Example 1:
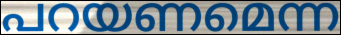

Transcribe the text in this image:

പറയണമെന്ന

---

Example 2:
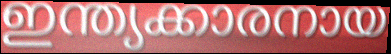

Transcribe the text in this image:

ഇന്ത്യക്കാരനായ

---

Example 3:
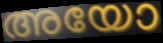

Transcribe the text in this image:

അയോ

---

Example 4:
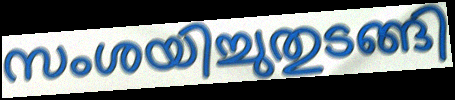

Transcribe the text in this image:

സംശയിച്ചുതുടങ്ങി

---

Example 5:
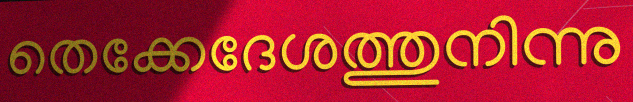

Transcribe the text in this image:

തെക്കേദേശത്തുനിന്നു